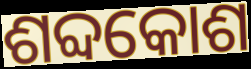
ଶବ୍ଦକୋଶ